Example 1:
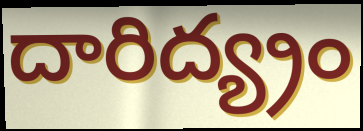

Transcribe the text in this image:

దారిద్య్రం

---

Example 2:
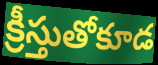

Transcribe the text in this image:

క్రీస్తుతోకూడ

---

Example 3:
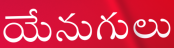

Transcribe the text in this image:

యేనుగులు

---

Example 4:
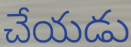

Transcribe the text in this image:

చేయడు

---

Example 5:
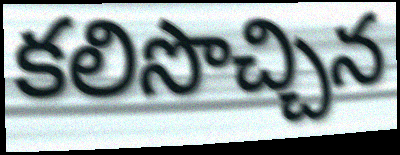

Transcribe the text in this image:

కలిసొచ్చిన